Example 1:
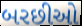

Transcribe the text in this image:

બરછીઓ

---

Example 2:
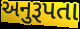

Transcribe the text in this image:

અનુરૂપતા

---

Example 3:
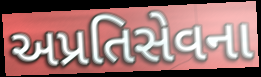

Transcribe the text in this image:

અપ્રતિસેવના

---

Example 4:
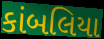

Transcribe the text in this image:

કાંબલિયા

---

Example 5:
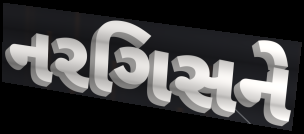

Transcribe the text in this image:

નરગિસને